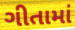
ગીતામાં